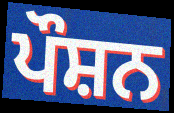
ਪੌਸ਼ਨ